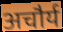
अचौर्य